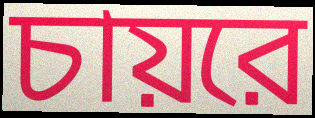
চায়রে